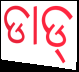
ଡାଡ୍